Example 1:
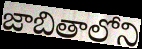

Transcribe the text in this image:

జాబితాలోని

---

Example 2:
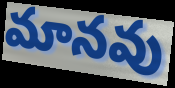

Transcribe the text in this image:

మానవు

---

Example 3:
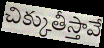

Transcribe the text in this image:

చిక్కుతీస్తావే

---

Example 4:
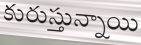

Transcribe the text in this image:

కురుస్తున్నాయి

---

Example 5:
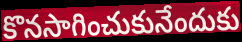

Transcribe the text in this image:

కొనసాగించుకునేందుకు